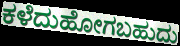
ಕಳೆದುಹೋಗಬಹುದು